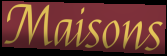
Maisons